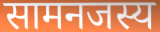
सामनजस्य